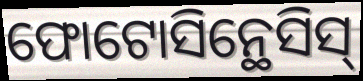
ଫୋଟୋସିନ୍ଥେସିସ୍